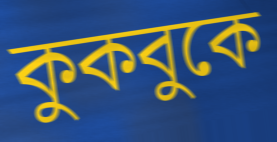
কুকবুকে